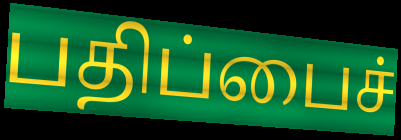
பதிப்பைச்